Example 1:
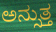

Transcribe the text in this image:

ಅನ್ಸುತ್ತ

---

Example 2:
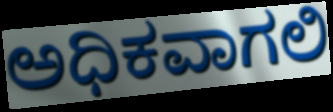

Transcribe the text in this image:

ಅಧಿಕವಾಗಲಿ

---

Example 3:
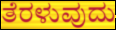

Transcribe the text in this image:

ತೆರಳುವುದು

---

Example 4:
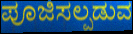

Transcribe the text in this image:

ಪೂಜಿಸಲ್ಪಡುವ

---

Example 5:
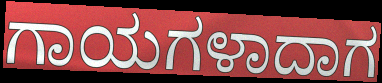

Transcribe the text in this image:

ಗಾಯಗಳಾದಾಗ